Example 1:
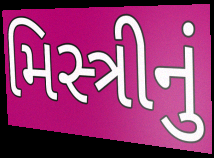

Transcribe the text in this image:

મિસ્ત્રીનું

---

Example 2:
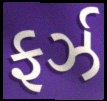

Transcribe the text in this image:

ફર્ઝ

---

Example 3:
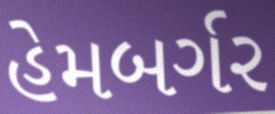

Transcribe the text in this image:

હેમબર્ગર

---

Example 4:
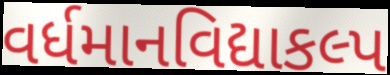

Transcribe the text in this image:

વર્ધમાનવિદ્યાકલ્પ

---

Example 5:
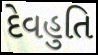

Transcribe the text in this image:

દેવહુતિ